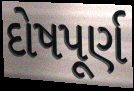
દોષપૂર્ણ